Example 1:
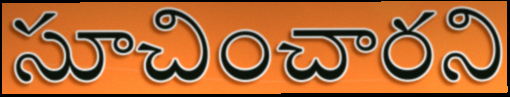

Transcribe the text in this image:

సూచించారని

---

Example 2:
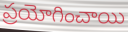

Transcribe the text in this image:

ప్రయోగించాయి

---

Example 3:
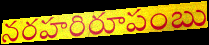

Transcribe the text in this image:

నరహరిరూపంబు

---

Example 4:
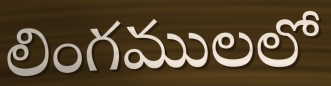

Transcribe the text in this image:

లింగములలో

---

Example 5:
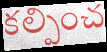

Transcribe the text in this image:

కల్పించ